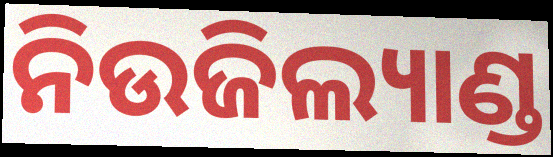
ନିଉଜିଲ୍ୟାଣ୍ଡ